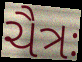
ચૈત્રઃ